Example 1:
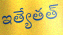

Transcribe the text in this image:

ఇత్యేతత్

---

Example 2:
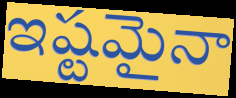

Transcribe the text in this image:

ఇష్టమైనా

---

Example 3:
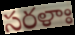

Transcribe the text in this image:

సరళాః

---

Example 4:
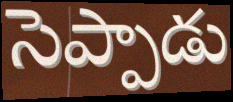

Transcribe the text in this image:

సెప్పాడు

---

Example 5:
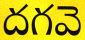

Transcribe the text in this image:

దగవె